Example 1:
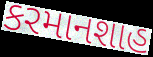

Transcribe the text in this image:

કરમાનશાહ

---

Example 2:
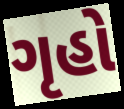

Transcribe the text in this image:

ગૃહો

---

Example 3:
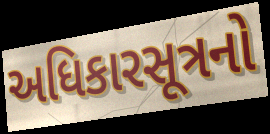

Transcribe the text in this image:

અધિકારસૂત્રનો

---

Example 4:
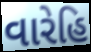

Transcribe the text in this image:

વારેહિ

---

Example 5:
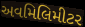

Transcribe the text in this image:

અવમિલિમીટર